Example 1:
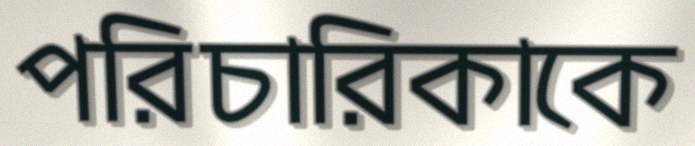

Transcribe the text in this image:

পরিচারিকাকে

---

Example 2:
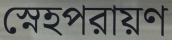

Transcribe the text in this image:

স্নেহপরায়ণ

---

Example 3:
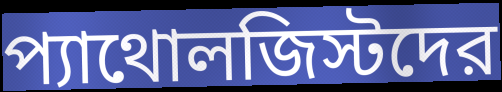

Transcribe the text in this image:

প্যাথোলজিস্টদের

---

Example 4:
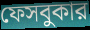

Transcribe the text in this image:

ফেসবুকার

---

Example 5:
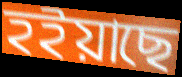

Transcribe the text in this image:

হইয়াছে